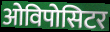
ओविपोसिटर